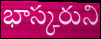
భాస్కరుని